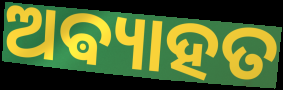
ଅଵ୍ୟାହତ